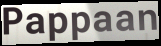
Pappaan